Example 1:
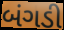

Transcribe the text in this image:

બંગડી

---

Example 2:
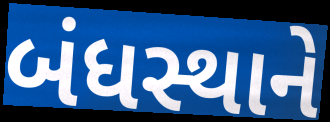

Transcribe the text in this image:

બંધસ્થાને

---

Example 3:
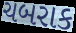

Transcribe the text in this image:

ચબરાક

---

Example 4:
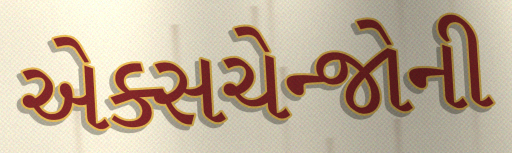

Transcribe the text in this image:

એક્સચેન્જોની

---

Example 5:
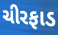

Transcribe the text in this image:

ચીરફાડ